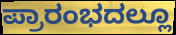
ಪ್ರಾರಂಭದಲ್ಲೂ